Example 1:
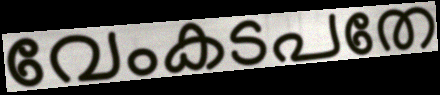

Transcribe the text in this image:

വേംകടപതേ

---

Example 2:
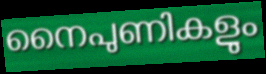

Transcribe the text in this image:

നൈപുണികളും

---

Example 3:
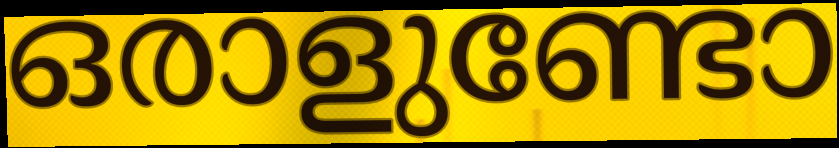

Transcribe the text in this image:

ഒരാളുണ്ടോ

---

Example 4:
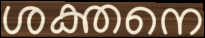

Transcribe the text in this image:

ശക്തനെ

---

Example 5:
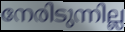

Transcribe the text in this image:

നേരിടുന്നില്ല